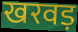
खरवड़